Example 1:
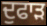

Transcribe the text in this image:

ਦੁਫਾੜ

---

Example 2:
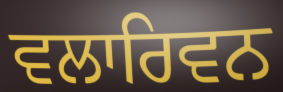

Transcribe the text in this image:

ਵਲਾਰਿਵਨ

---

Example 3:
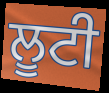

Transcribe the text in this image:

ਲੂਟੀ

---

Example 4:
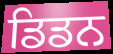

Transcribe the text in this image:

ਡਿਡਨ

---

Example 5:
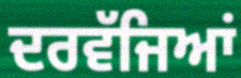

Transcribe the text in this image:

ਦਰਵੱਜਿਆਂ